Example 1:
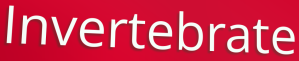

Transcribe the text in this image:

Invertebrate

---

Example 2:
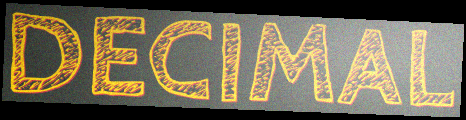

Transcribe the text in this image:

DECIMAL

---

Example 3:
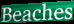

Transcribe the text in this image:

Beaches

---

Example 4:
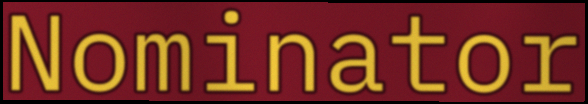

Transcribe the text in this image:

Nominator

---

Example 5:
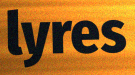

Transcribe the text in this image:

lyres